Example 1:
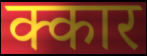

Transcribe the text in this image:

क्कार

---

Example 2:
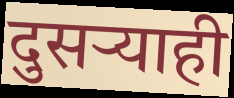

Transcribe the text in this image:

दुसर्‍याही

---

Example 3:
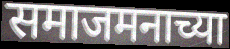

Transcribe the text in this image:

समाजमनाच्या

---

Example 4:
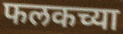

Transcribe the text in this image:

फलकच्या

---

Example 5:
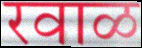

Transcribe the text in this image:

रवाळ